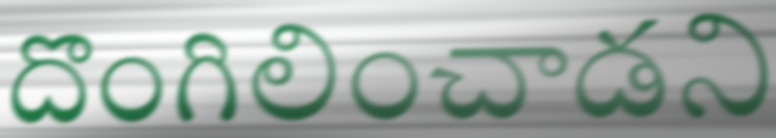
దొంగిలించాడని